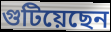
গুটিয়েছেন